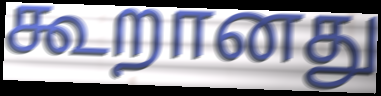
கூறானது